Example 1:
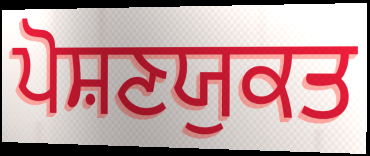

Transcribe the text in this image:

ਪੋਸ਼ਣਯੁਕਤ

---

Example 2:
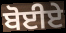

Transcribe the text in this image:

ਬੋਈਏ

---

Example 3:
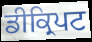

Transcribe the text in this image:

ਡੀਕ੍ਰਿਪਟ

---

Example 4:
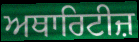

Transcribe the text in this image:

ਅਥਾਰਿਟੀਜ਼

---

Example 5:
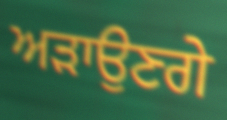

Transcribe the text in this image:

ਅੜਾਉਣਗੇ